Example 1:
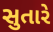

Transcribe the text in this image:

સુતારે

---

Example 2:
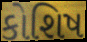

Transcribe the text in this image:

કોશિષ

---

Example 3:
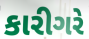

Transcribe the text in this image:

કારીગરે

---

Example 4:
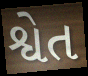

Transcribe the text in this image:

શ્વેત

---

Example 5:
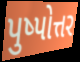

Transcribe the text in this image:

પુષ્પોત્તર